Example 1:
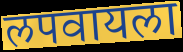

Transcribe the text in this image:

लपवायला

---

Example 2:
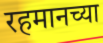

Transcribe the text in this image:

रहमानच्या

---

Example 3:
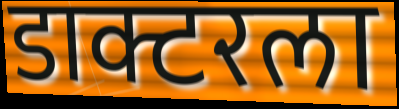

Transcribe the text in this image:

डाक्टरला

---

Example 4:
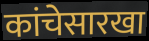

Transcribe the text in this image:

कांचेसारखा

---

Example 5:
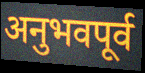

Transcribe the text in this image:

अनुभवपूर्व